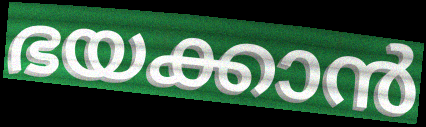
ഭയക്കാൻ